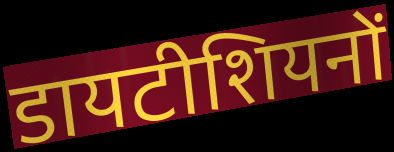
डायटीशियनों